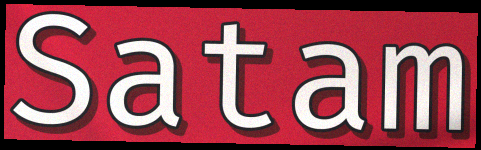
Satam